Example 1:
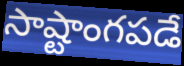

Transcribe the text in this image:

సాష్టాంగపడే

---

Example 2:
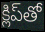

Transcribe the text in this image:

క్లిప్‌తో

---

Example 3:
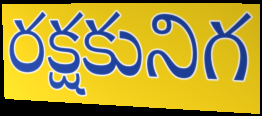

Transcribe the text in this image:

రక్షకునిగ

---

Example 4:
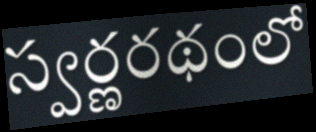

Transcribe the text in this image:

స్వర్ణరథంలో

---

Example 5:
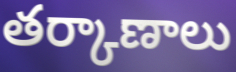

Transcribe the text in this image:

తర్కాణాలు